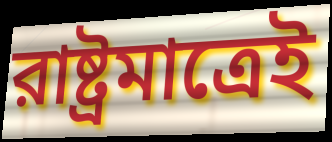
রাষ্ট্রমাত্রেই